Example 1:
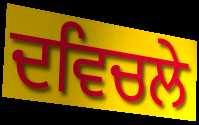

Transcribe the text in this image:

ਦਵਿਚਲੇ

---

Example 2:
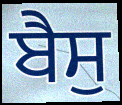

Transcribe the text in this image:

ਬੈਸੁ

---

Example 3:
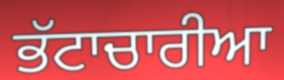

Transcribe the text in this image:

ਭੱਟਾਚਾਰੀਆ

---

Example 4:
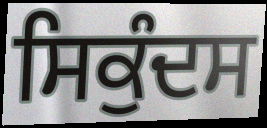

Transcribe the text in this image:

ਸਿਕੁੰਦਸ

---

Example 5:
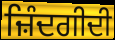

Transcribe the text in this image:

ਜ਼ਿੰਦਗੀਦੀ